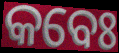
କବେଃ